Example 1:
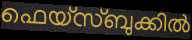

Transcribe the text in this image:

ഫെയ്സ്ബുക്കിൽ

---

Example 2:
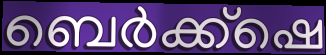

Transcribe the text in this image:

ബെർക്ക്ഷെ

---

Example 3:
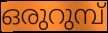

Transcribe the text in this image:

ഒരുറുമ്പ്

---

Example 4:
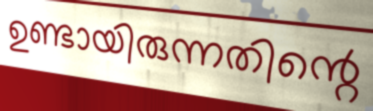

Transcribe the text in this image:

ഉണ്ടായിരുന്നതിന്റെ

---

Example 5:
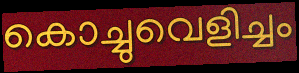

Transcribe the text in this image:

കൊച്ചുവെളിച്ചം